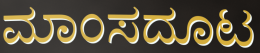
ಮಾಂಸದೂಟ